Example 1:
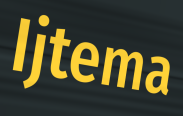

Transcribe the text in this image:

Ijtema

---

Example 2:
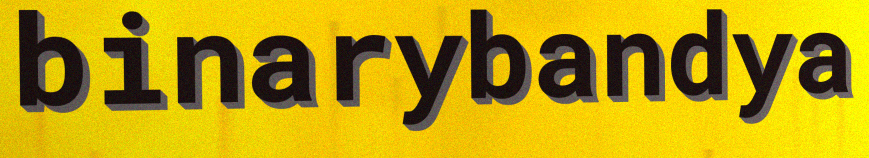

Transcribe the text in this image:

binarybandya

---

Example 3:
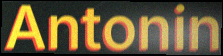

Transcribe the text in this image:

Antonin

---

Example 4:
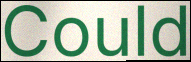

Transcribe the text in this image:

Could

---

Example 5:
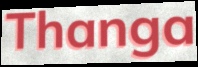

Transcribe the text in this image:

Thanga